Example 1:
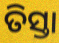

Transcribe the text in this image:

ତିସ୍ତା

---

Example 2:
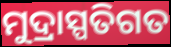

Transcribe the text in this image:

ମୁଦ୍ରାସ୍ପତିଗତ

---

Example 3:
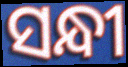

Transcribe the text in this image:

ସନ୍ଧୀ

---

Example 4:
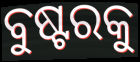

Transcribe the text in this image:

ବୁଷ୍ଟରକୁ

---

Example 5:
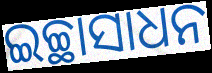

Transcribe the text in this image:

ଇଚ୍ଛାସାଧନ